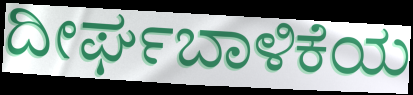
ದೀರ್ಘಬಾಳಿಕೆಯ